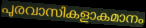
പുരവാസികളാകമാനം